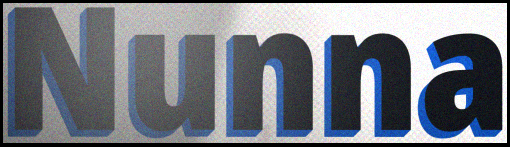
Nunna